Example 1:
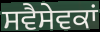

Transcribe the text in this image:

ਸਵੈਸੇਵਕਾਂ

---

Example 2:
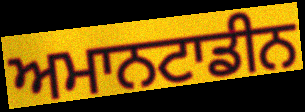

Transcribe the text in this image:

ਅਮਾਨਟਾਡੀਨ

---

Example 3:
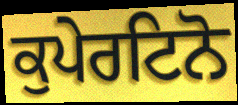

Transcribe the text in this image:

ਕੁਪੇਰਟਿਨੋ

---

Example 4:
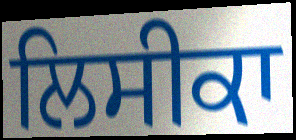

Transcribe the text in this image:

ਲਿਸੀਕਾ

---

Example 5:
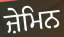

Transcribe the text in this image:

ਜ਼ੇਮਿਨ